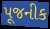
પૂજનીક